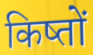
किष्तों